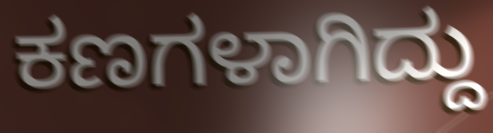
ಕಣಗಳಾಗಿದ್ದು